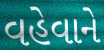
વહેવાને